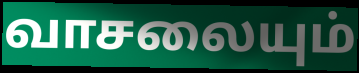
வாசலையும்